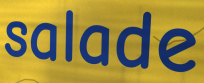
salade